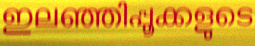
ഇലഞ്ഞിപ്പൂക്കളുടെ